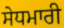
ਸੇਧਮਾਰੀ